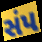
સંપ